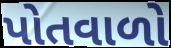
પોતવાળો